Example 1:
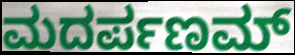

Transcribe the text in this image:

ಮದರ್ಪಣಮ್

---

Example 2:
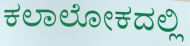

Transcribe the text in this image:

ಕಲಾಲೋಕದಲ್ಲಿ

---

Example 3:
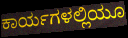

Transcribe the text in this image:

ಕಾರ್ಯಗಳಲ್ಲಿಯೂ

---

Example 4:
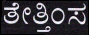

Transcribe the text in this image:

ತೇತ್ತಿಂಸ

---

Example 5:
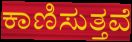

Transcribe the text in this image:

ಕಾಣಿಸುತ್ತವೆ